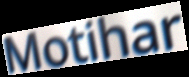
Motihar